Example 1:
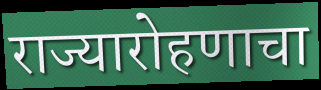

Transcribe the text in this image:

राज्यारोहणाचा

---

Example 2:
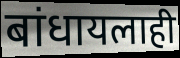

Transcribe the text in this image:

बांधायलाही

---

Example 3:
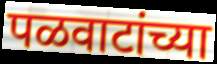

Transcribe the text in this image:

पळवाटांच्या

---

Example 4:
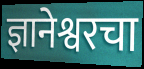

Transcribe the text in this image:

ज्ञानेश्वरचा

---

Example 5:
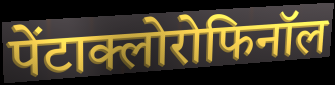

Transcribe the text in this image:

पेंटाक्लोरोफिनॉल